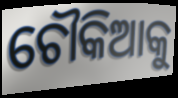
ଚୌକିଆକୁ